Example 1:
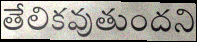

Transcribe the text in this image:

తేలికవుతుందని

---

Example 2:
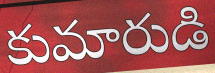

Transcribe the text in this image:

కుమారుడి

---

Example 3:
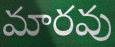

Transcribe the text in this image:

మారవు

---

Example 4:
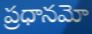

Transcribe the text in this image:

ప్రధానమో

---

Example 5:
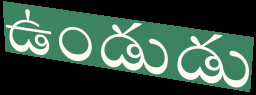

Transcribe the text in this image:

ఉండుడు